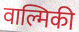
वाल्मिकी